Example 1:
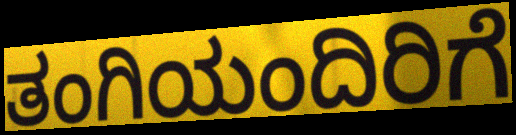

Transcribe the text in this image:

ತಂಗಿಯಂದಿರಿಗೆ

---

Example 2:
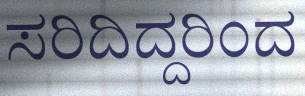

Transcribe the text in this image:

ಸರಿದಿದ್ದರಿಂದ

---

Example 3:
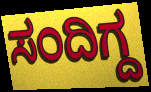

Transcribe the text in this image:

ಸಂದಿಗ್ದ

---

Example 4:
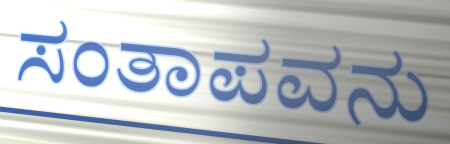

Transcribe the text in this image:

ಸಂತಾಪವನು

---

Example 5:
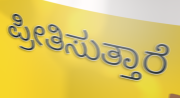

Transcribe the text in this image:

ಪ್ರೀತಿಸುತ್ತಾರೆ